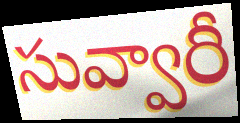
సువ్వారీ